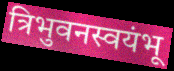
त्रिभुवनस्वयंभू